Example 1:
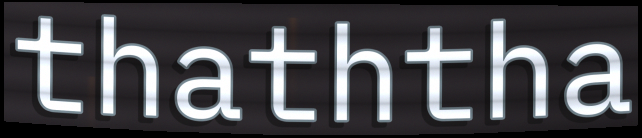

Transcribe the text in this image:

thaththa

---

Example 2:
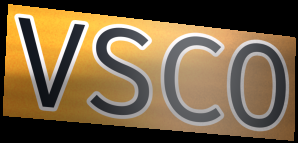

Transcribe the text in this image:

VSCO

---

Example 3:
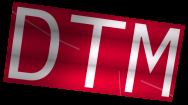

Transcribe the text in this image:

DTM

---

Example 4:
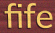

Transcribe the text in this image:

fife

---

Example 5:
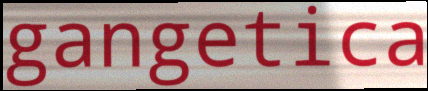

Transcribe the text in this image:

gangetica